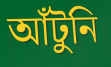
আঁটুনি